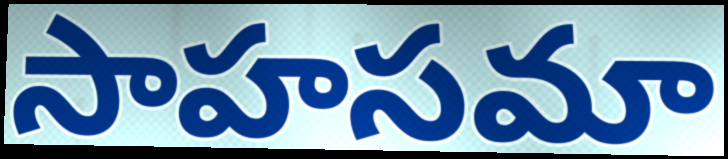
సాహసమా